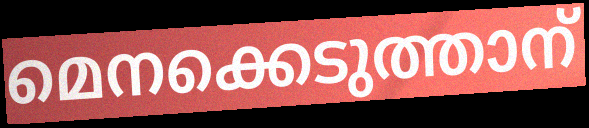
മെനക്കെടുത്താന്